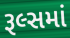
રૂલ્સમાં